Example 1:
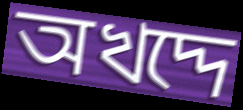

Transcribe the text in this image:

অখদ্দে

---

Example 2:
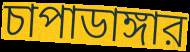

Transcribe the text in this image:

চাপাডাঙ্গার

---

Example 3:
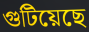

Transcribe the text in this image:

গুটিয়েছে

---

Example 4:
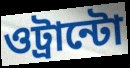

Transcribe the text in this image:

ওট্রান্টো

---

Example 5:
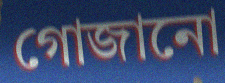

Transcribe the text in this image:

গোজানো